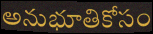
అనుభూతికోసం